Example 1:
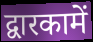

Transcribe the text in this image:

द्वारकामें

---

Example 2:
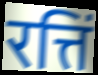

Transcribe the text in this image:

रत्तिं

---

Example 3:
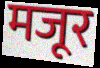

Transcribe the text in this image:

मजूर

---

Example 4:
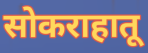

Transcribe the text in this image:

सोकराहातू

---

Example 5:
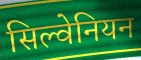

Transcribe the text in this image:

सिल्वेनियन